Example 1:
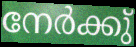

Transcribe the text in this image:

നേർക്കു്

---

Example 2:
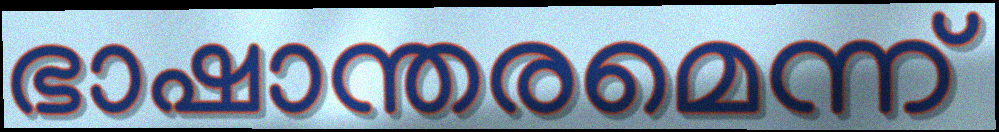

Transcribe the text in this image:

ഭാഷാന്തരമെന്ന്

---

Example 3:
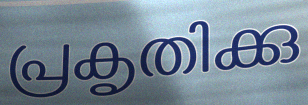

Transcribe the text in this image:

പ്രകൃതിക്കു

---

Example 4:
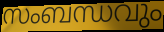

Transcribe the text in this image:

സംബന്ധവും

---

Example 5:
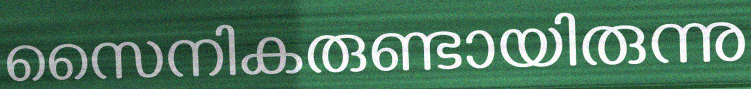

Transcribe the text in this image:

സൈനികരുണ്ടായിരുന്നു